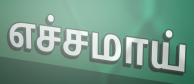
எச்சமாய்